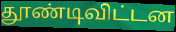
தூண்டிவிட்டன